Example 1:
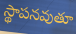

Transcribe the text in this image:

స్థాపనవుతూ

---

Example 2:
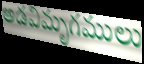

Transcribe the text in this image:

అడవిమృగములు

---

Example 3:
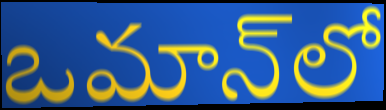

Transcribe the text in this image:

ఒమాన్‌లో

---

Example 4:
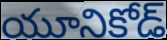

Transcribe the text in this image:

యూనికోడ్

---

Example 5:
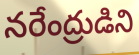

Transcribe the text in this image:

నరేంద్రుడిని